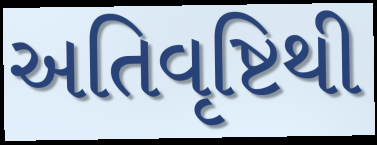
અતિવૃષ્ટિથી